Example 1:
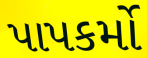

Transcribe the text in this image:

પાપકર્મો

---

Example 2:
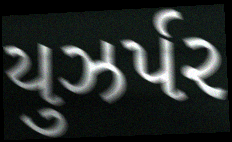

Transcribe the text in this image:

યુઝર્પર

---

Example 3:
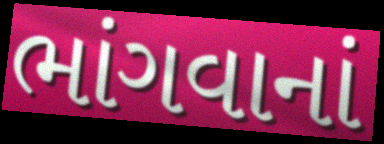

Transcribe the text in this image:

ભાંગવાનાં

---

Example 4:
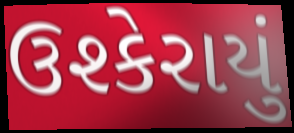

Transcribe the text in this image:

ઉશ્કેરાયું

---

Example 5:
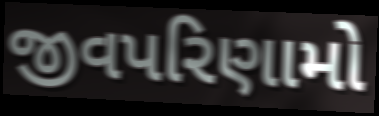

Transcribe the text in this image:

જીવપરિણામો